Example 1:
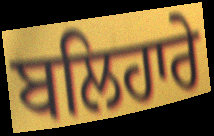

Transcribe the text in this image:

ਬਲਿਹਾਰੇ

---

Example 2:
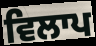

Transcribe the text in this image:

ਵਿਲਾਪ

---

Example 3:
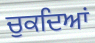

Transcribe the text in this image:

ਚੁਕਦਿਆਂ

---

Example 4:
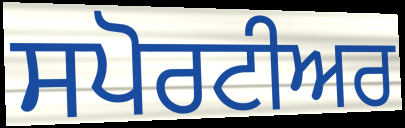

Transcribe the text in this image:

ਸਪੋਰਟੀਅਰ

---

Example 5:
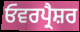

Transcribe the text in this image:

ਓਵਰਪ੍ਰੈਸ਼ਰ